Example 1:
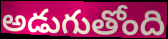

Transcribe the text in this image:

అడుగుతోంది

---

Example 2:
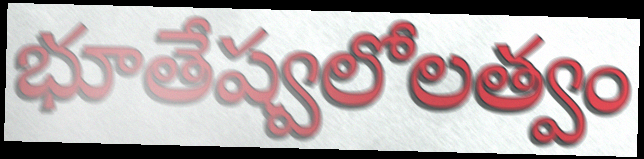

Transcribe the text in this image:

భూతేష్వలోలత్వం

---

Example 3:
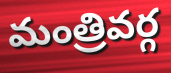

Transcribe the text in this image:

మంత్రివర్గ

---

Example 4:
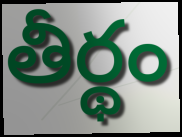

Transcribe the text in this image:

తీర్థం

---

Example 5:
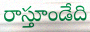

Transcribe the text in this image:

రాస్తూండేది